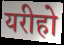
यरीहो